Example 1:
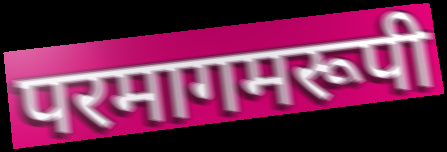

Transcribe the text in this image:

परमागमरूपी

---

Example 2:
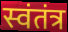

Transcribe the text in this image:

स्वंतंत्र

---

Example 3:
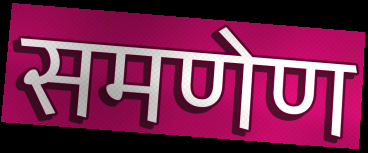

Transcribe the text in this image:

समणेण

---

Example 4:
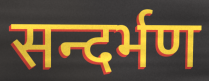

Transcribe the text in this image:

सन्दर्भण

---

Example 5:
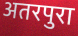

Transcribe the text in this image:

अतरपुरा